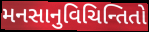
મનસાનુવિચિન્તિતો